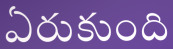
ఏరుకుంది